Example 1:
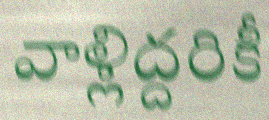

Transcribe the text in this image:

వాళ్లిద్దరికీ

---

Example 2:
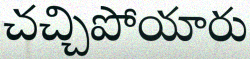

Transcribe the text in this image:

చచ్చిపోయారు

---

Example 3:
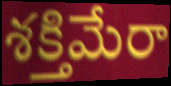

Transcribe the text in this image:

శక్తిమేరా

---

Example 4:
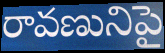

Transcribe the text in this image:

రావణునిపై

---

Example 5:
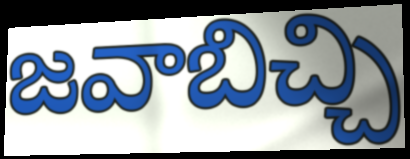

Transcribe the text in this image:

జవాబిచ్చి